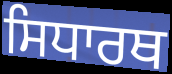
ਸਿਧਾਰਥ